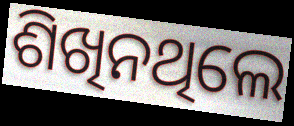
ଶିଖିନଥିଲେ